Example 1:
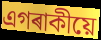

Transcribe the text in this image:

এগৰাকীয়ে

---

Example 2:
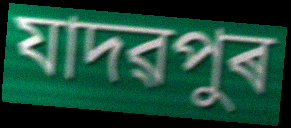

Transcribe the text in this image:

যাদৱপুৰ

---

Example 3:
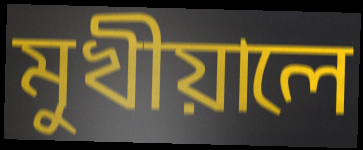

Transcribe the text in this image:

মুখীয়ালে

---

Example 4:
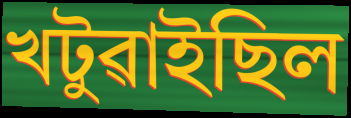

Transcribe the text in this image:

খটুৱাইছিল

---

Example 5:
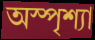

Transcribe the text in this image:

অস্পৃশ্যা